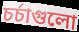
চর্চাগুলো